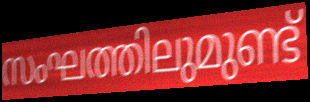
സംഘത്തിലുമുണ്ട്